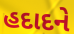
હદાદને